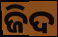
ଜିଦ